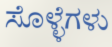
ಸೊಳ್ಳೆಗಳು